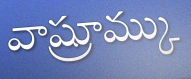
వాష్రూమ్కు